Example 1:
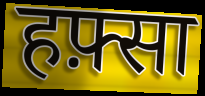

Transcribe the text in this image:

हफ़्सा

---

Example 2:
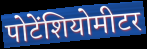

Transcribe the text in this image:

पोटेंशियोमीटर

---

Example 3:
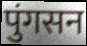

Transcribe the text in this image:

पुंगसन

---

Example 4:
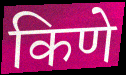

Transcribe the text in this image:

किणे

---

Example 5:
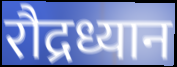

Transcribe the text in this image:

रौद्रध्यान